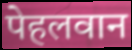
पेहलवान